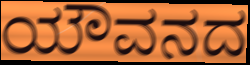
ಯೌವನದ